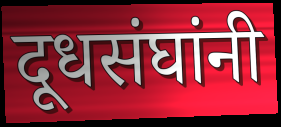
दूधसंघांनी